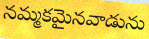
నమ్మకమైనవాడును